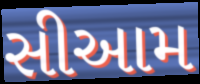
સીઆમ